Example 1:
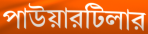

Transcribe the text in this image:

পাউয়ারটিলার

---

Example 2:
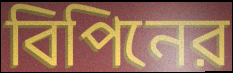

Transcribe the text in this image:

বিপিনের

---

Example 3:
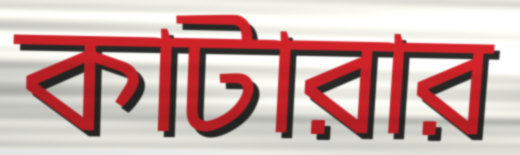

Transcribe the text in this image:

কাটারার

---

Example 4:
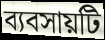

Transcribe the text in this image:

ব্যবসায়টি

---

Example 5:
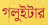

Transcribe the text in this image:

গলুইটার